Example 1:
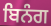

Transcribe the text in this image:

ਬਿਨੰਗ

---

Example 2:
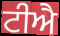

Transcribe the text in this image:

ਟੀਐ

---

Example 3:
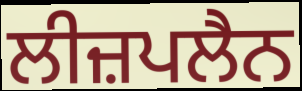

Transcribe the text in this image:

ਲੀਜ਼ਪਲੈਨ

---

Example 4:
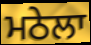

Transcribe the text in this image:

ਮਠੇਲਾ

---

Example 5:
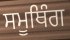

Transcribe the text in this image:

ਸਮੂਥਿੰਗ